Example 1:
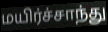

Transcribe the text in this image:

மயிர்ச்சாந்து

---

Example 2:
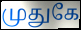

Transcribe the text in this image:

முதுகே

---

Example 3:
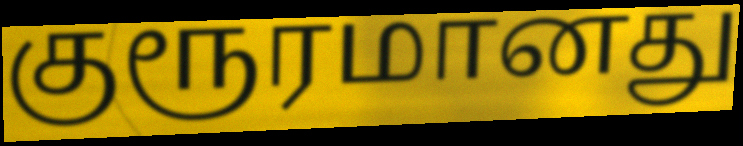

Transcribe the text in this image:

குரூரமானது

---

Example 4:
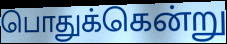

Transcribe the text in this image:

பொதுக்கென்று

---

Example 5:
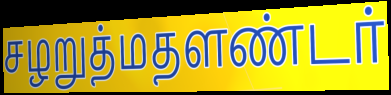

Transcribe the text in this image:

சழறுத்மதளண்டர்